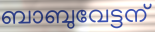
ബാബുവേട്ടന്